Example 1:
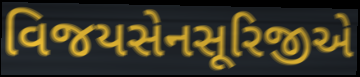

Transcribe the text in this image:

વિજયસેનસૂરિજીએ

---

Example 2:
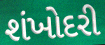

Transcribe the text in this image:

શંખોદરી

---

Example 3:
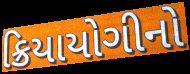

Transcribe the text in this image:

ક્રિયાયોગીનો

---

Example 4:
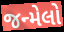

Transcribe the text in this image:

જન્મેલો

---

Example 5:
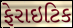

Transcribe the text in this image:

ફેરાઇટિક